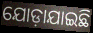
ଯୋଡ଼ାଯାଇଛି